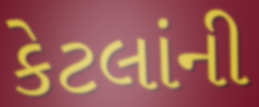
કેટલાંની